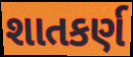
શાતકર્ણ